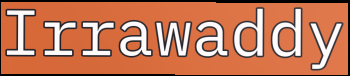
Irrawaddy